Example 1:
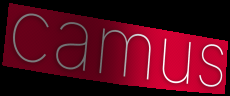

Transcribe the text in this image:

camus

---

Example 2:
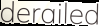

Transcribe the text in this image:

derailed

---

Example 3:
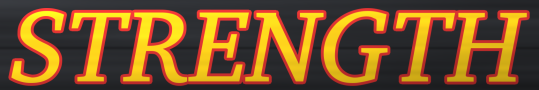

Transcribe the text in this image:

STRENGTH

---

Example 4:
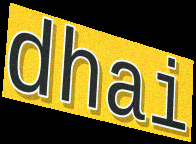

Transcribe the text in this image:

dhai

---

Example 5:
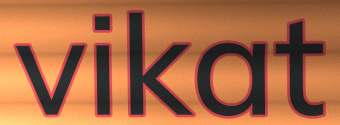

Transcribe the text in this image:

vikat